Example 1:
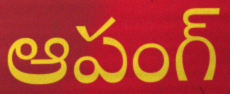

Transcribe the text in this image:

ఆపంగ్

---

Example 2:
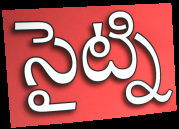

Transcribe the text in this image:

సైట్ని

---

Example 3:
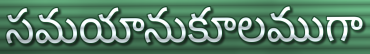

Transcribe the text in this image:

సమయానుకూలముగా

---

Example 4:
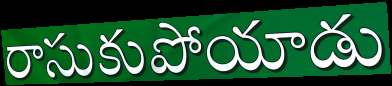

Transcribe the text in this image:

రాసుకుపోయాడు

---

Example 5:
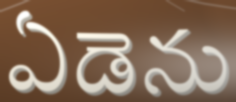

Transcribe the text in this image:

ఏడెను